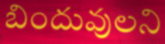
బిందువులని